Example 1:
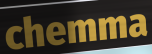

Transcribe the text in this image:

chemma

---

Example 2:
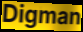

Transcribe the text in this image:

Digman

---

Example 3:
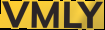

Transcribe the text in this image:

VMLY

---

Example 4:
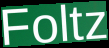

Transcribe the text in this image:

Foltz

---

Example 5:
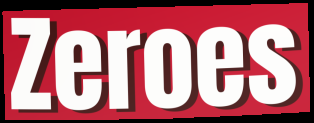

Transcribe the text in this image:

Zeroes